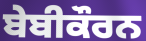
ਬੇਬੀਕੌਰਨ